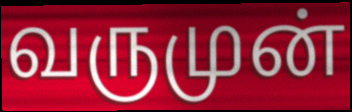
வருமுன்